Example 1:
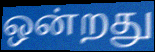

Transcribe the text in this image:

ஒன்றது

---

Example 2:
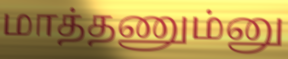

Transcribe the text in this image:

மாத்தணும்னு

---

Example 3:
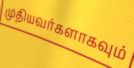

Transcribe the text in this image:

முதியவர்களாகவும்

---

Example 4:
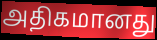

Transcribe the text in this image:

அதிகமானது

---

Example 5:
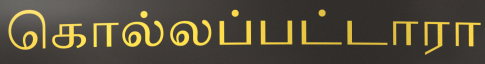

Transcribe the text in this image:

கொல்லப்பட்டாரா